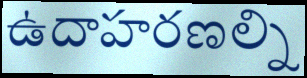
ఉదాహరణల్ని